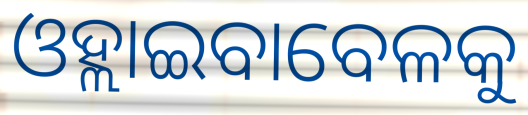
ଓହ୍ଲାଇବାବେଳକୁ